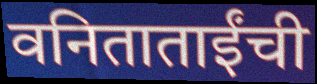
वनिताताईंची